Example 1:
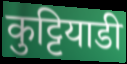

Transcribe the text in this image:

कुट्टियाडी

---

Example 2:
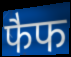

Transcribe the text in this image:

फैफ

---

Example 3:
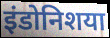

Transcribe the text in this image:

इंडोनिशया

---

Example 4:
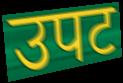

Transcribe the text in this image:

उपट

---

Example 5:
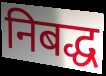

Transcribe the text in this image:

निबद्ध